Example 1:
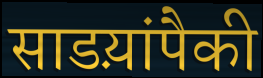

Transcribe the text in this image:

साडय़ांपैकी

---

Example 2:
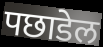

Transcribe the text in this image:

पछाडेल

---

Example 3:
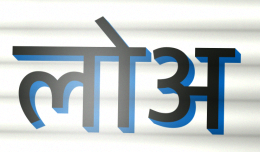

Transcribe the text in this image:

लोअ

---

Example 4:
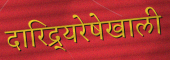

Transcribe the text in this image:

दारिद्र्यरेषेखाली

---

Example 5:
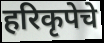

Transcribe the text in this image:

हरिकृपेचे